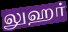
லுஹர்